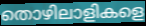
തൊഴിലാളികളെ